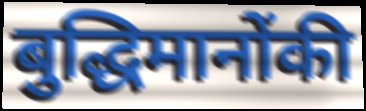
बुद्धिमानोंकी